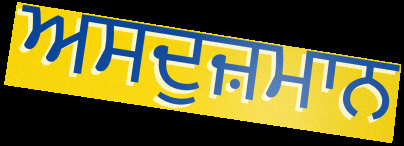
ਅਸਦੁਜ਼ਮਾਨ